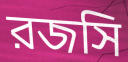
রজসি